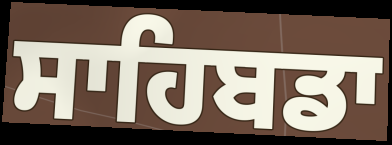
ਸਾਹਿਬਡਾ